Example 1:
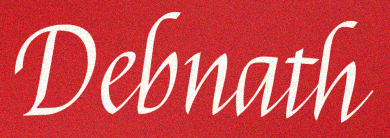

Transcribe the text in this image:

Debnath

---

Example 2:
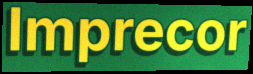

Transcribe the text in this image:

Imprecor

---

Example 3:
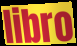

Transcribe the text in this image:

libro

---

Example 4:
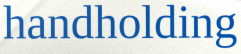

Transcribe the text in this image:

handholding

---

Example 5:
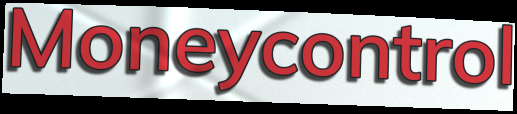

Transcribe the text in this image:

Moneycontrol